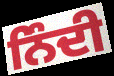
ਨਿੰਦੀ